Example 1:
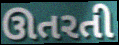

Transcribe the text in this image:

ઊતરતી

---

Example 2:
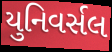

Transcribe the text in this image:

યુનિવર્સલ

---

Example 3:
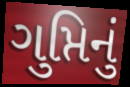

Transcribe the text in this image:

ગુપ્તિનું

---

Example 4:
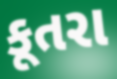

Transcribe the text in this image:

કૂતરા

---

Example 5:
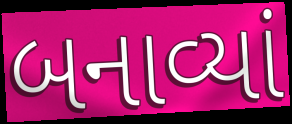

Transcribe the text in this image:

બનાવ્યાં